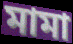
মামা